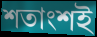
শতাংশই